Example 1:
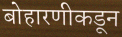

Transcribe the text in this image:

बोहारणीकडून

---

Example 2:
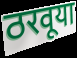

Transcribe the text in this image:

ठरवूया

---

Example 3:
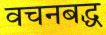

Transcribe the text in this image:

वचनबद्ध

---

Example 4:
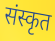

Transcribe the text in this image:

संस्कृत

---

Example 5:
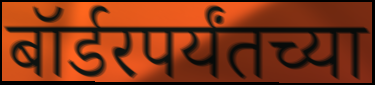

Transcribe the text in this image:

बॉर्डरपर्यंतच्या